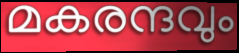
മകരന്ദവും